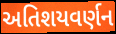
અતિશયવર્ણન